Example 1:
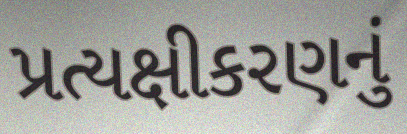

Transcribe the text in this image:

પ્રત્યક્ષીકરણનું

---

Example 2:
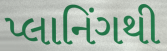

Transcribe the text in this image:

પ્લાનિંગથી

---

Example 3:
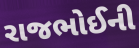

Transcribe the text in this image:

રાજભોઈની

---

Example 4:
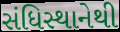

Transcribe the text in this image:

સંધિસ્થાનેથી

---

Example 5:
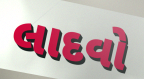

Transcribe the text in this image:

લાદવો